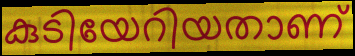
കുടിയേറിയതാണ്